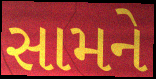
સામને